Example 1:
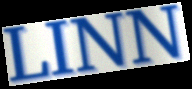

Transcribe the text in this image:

LINN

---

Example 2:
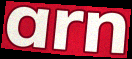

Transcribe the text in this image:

arn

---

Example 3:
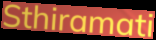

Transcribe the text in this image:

Sthiramati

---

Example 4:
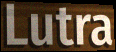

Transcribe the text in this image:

Lutra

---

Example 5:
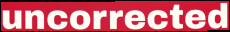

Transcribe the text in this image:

uncorrected